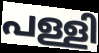
പള്ളി